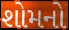
શોમનો